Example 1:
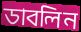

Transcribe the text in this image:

ডাবলিন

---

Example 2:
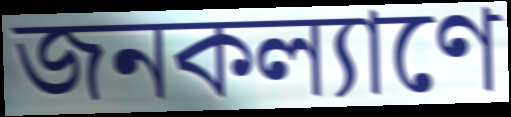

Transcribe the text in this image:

জনকল্যাণে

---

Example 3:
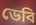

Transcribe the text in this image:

ডেবি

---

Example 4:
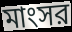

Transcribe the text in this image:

মাংসর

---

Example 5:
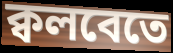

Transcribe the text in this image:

ক্বলবেতে